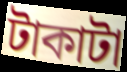
টাকাটা